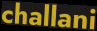
challani